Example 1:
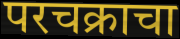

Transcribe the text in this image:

परचक्राचा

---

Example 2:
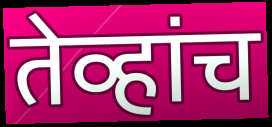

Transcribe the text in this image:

तेव्हांच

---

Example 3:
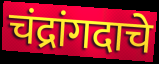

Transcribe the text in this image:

चंद्रांगदाचे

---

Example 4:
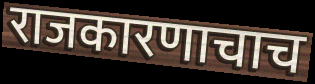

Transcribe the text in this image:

राजकारणाचाच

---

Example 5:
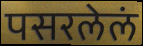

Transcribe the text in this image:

पसरलेलं